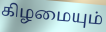
கிழமையும்